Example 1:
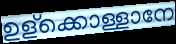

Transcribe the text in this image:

ഉള്ക്കൊള്ളാനേ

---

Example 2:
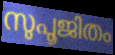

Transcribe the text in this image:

സുപൂജിതം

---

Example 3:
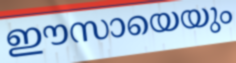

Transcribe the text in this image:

ഈസായെയും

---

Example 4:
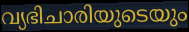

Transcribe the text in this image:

വ്യഭിചാരിയുടെയും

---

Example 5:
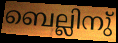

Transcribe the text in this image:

ബെല്ലിനു്